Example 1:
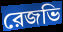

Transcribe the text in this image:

রেজভি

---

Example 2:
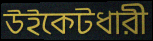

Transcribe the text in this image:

উইকেটধারী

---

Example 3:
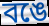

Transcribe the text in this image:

বঙে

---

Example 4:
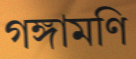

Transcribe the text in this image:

গঙ্গামণি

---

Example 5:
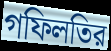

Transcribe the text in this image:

গফিলতির